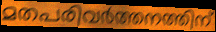
മതപരിവർത്തനത്തിന്